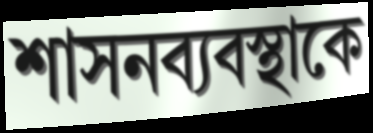
শাসনব্যবস্থাকে